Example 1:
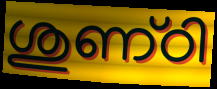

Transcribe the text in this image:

ശുണ്‌ഠി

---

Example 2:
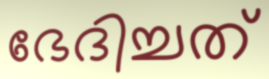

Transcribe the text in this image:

ഭേദിച്ചത്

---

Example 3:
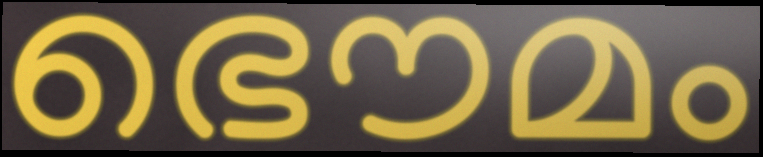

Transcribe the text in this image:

ഭൌമം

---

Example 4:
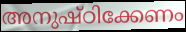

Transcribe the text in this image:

അനുഷ്ഠിക്കേണം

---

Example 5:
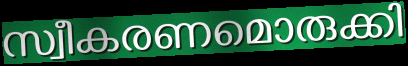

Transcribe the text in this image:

സ്വീകരണമൊരുക്കി